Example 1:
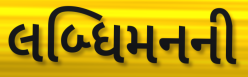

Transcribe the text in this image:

લબ્ધિમનની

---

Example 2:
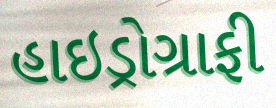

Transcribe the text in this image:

હાઇડ્રોગ્રાફી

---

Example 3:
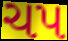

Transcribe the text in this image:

ચપ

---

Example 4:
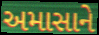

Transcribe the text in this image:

અમાસાને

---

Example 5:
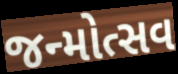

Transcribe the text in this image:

જન્મોત્સવ